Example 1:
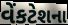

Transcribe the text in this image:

વેંકટેશના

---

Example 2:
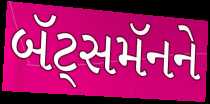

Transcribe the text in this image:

બૅટ્સમૅનને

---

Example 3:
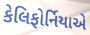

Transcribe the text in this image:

કેલિફોર્નિયાએ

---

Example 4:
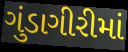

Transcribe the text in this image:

ગુંડાગીરીમાં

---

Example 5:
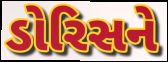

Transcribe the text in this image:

ડોરિસને